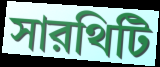
সারথিটি